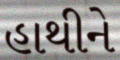
હાથીને